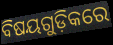
ବିଷୟଗୁଡ଼ିକରେ